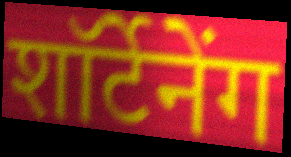
शॉर्टेनेंग